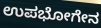
ಉಪಭೋಗೇನ